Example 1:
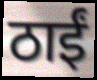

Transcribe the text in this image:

ठाईं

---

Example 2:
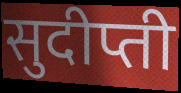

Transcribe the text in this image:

सुदीप्ती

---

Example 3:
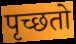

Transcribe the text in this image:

पृच्छतो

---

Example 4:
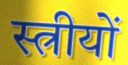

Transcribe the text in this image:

स्त्रीयों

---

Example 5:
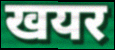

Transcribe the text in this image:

खयर